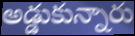
అడ్డుకున్నారు